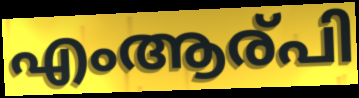
എംആര്പി